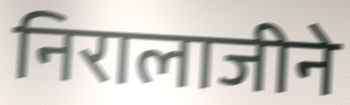
निरालाजीने